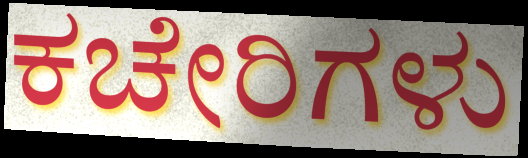
ಕಚೇರಿಗಳು